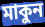
মাকুন